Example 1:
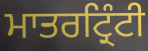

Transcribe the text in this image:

ਮਾਤਰਟ੍ਰਿੰਟੀ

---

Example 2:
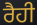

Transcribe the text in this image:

ਰੈਹੀ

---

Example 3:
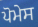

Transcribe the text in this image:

ਪੋਮੇਸ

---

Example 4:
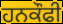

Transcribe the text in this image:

ਹਨਕੌਫੀ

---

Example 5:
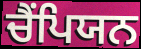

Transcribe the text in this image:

ਚੈੰਪਿਯਨ